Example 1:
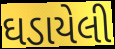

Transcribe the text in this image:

ઘડાયેલી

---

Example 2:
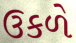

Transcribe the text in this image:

ઉકળે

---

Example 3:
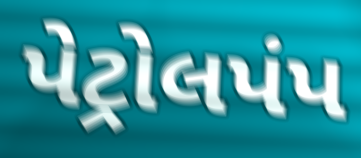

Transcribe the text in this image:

પેટ્રોલપંપ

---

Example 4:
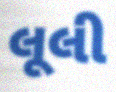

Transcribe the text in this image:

લૂલી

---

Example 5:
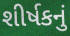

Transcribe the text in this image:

શીર્ષકનું